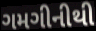
ગમગીનીથી